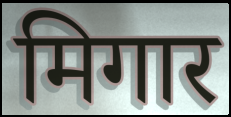
मिगार